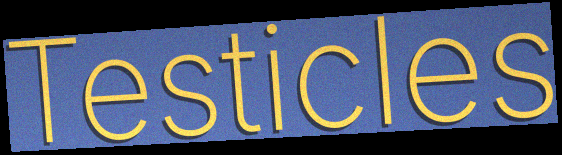
Testicles